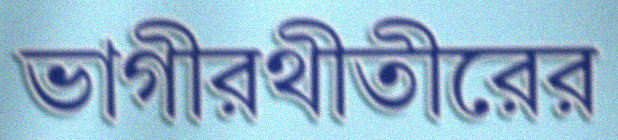
ভাগীরথীতীরের